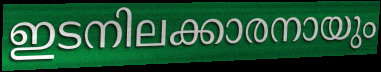
ഇടനിലക്കാരനായും